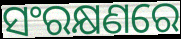
ସଂରକ୍ଷଣରେ